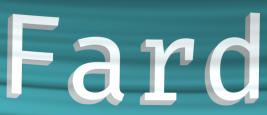
Fard